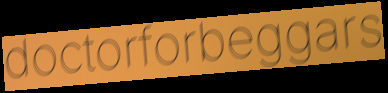
doctorforbeggars